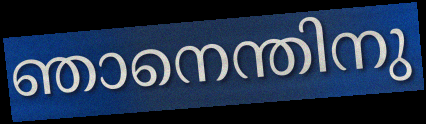
ഞാനെന്തിനു